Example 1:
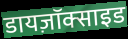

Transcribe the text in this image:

डायज़ॉक्साइड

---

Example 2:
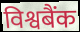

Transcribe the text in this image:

विश्वबैंक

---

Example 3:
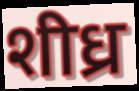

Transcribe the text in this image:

शीध्र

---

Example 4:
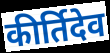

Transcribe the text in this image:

कीर्तिदेव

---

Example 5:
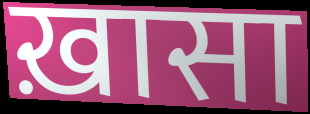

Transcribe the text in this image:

ख़ासा